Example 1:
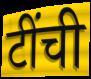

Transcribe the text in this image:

टींची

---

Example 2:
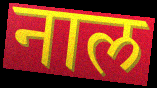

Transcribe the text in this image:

नाल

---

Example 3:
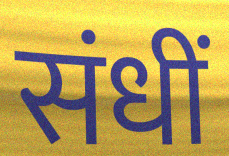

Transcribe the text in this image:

संधीं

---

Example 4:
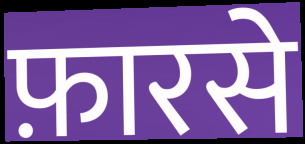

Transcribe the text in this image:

फ़ारसे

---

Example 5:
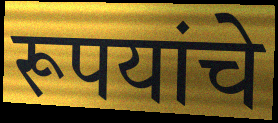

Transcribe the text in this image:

रूपयांचे